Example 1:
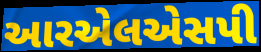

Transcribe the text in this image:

આરએલએસપી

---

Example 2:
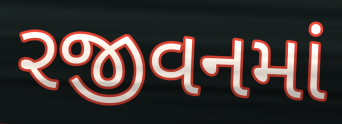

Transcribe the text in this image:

રજીવનમાં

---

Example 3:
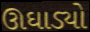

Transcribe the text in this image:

ઊઘાડ્યો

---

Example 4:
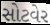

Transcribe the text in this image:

સોટવેર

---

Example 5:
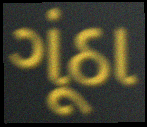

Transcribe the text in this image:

ગૂંઠા